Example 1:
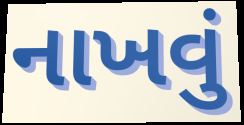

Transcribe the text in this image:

નાખવું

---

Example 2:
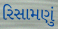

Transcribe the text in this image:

રિસામણું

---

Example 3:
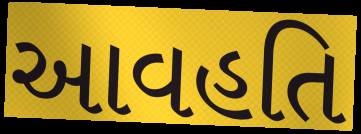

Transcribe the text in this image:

આવહતિ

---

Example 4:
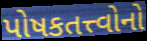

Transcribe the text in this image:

પોષકતત્ત્વોનો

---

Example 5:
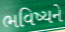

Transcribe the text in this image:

ભવિષ્યને